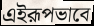
এইরূপভাবে